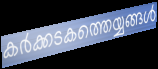
കർക്കടകത്തെയ്യങ്ങൾ